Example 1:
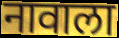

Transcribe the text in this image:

नावाला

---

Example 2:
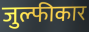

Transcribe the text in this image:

जुल्फीकार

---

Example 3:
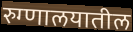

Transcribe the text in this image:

रुग्णालयातील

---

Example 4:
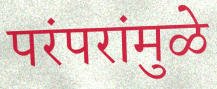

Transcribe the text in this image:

परंपरांमुळे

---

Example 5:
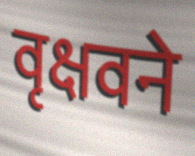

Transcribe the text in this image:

वृक्षवने